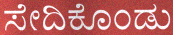
ಸೇದಿಕೊಂಡು